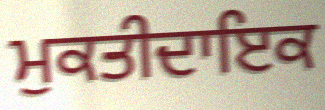
ਮੁਕਤੀਦਾਇਕ